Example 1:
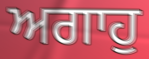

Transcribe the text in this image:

ਅਗਾਹੁ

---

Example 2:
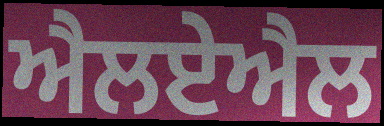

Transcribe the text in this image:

ਐਲਏਐਲ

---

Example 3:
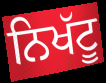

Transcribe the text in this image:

ਨਿਖੱਟੂ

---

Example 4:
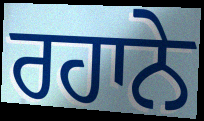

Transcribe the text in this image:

ਰਹਾਨੇ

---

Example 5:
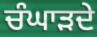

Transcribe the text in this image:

ਚੰਘਾੜਦੇ